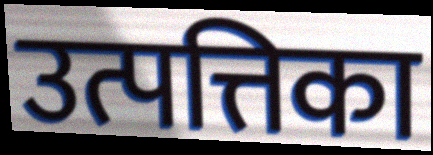
उत्पत्तिका